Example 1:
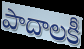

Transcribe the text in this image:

పాదాలకీ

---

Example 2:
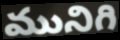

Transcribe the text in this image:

మునిగి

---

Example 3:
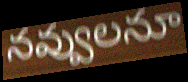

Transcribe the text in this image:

నవ్వులనూ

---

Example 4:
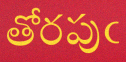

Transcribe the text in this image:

తోరపుఁ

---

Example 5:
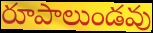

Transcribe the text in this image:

రూపాలుండవు